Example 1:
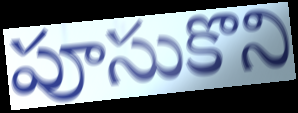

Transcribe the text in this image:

పూసుకొని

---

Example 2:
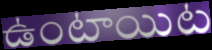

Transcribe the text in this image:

ఉంటాయిట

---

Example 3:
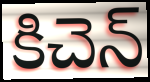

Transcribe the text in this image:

కిచెన్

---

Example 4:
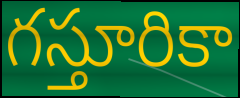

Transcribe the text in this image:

గస్తూరికా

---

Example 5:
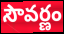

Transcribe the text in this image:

సౌవర్ణం